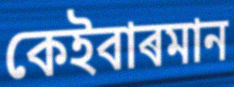
কেইবাৰমান